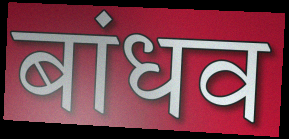
बांधव